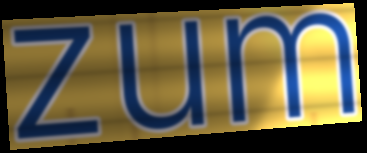
zum